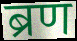
ब्रण